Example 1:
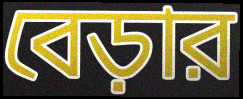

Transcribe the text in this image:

বেড়ার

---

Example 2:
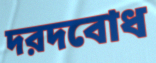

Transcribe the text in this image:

দরদবোধ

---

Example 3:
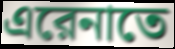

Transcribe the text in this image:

এরেনাতে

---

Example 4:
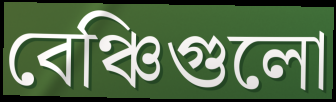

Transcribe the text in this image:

বেঞ্চিগুলো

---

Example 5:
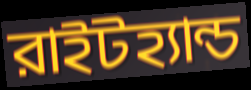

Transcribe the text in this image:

রাইটহ্যান্ড